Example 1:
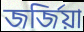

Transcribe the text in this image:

জৰ্জিয়া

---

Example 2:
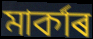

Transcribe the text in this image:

মাৰ্কাৰ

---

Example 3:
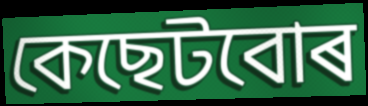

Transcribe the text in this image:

কেছেটবোৰ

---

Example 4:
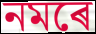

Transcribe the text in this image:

নমৰে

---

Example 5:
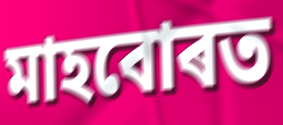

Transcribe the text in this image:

মাহবোৰত